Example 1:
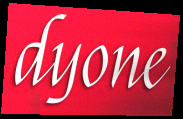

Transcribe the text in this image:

dyone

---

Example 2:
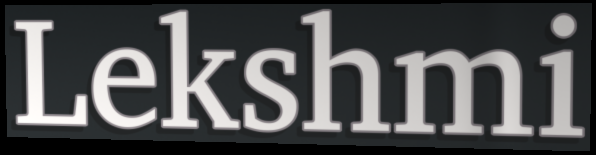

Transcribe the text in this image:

Lekshmi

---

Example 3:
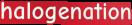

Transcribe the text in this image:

halogenation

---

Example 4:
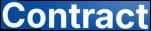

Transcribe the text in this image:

Contract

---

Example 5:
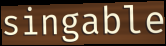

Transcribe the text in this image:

singable